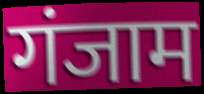
गंजाम